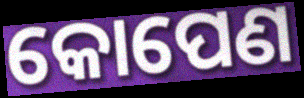
କୋପେଣ